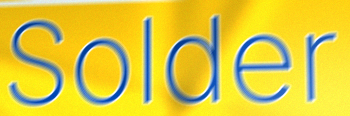
Solder